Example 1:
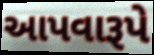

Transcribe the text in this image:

આપવારૂપે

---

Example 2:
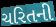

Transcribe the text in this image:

ચરિતની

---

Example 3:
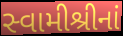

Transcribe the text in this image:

સ્વામીશ્રીનાં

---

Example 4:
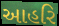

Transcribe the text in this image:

આહરિ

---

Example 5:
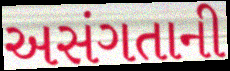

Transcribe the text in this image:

અસંગતાની